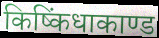
किष्किंधाकाण्ड